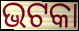
ଭଟକା